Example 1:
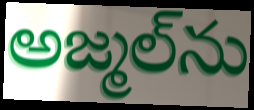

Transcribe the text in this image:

అజ్మల్‌ను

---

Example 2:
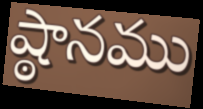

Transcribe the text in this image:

ష్ఠానము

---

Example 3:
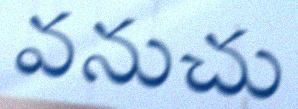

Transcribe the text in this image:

వనుచు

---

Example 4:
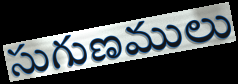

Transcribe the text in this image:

సుగుణములు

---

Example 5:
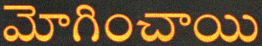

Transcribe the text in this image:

మోగించాయి